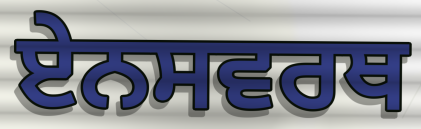
ਏਨਸਵਰਥ